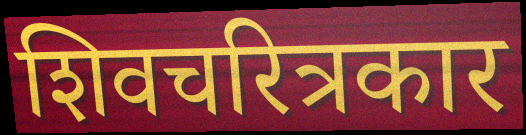
शिवचरित्रकार